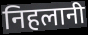
निहलानी